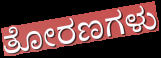
ತೋರಣಗಳು